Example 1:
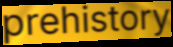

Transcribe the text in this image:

prehistory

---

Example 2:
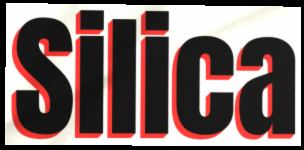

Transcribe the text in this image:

Silica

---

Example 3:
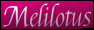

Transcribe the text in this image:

Melilotus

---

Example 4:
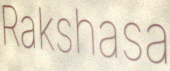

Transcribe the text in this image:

Rakshasa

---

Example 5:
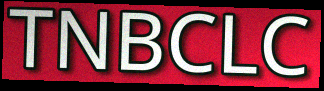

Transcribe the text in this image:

TNBCLC